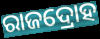
ରାଜଦ୍ରୋହ